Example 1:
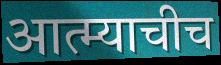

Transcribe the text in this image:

आत्म्याचीच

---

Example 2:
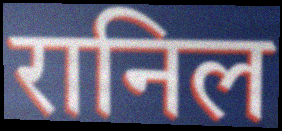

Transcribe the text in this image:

रानिल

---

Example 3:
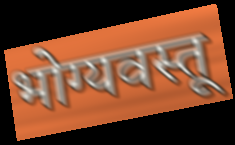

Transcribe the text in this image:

भोग्यवस्तू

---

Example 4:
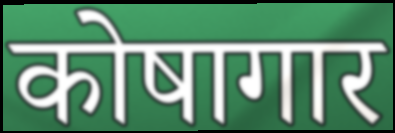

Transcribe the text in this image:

कोषागार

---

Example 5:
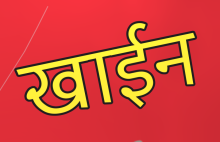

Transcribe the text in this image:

खाईन